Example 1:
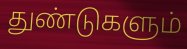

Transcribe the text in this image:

துண்டுகளும்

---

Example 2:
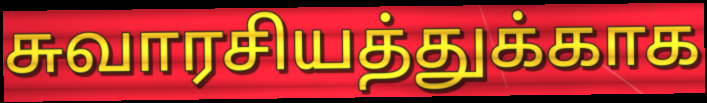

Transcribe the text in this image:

சுவாரசியத்துக்காக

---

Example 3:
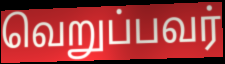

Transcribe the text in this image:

வெறுப்பவர்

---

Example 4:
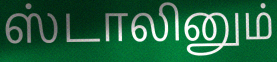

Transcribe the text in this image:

ஸ்டாலினும்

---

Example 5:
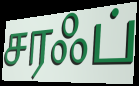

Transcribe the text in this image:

சரஃப்